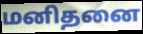
மனிதனை